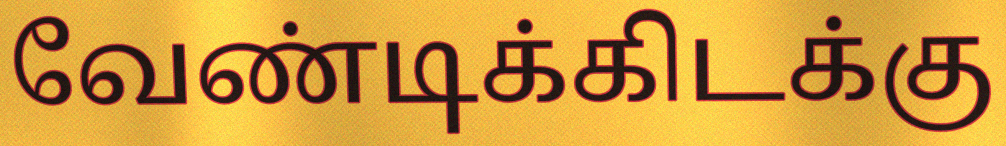
வேண்டிக்கிடக்கு